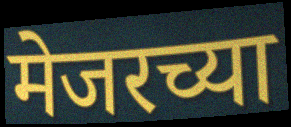
मेजरच्या